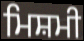
ਮਿਸ਼ਮੀ